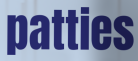
patties